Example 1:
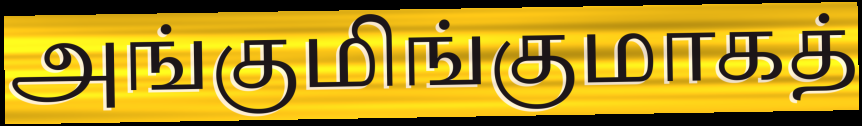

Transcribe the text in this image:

அங்குமிங்குமாகத்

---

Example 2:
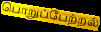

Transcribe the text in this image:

பொறுப்பேற்றல்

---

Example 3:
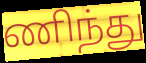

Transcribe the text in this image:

ணிந்து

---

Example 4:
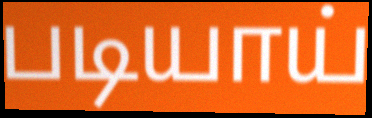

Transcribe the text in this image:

படியாய்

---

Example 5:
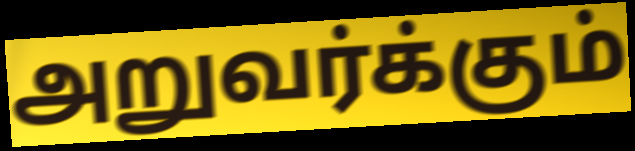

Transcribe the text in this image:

அறுவர்க்கும்